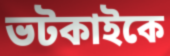
ভটকাইকে